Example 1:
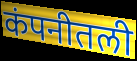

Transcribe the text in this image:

कंपनीतली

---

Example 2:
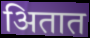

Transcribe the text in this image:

अितात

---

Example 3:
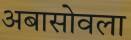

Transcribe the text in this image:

अबासोवला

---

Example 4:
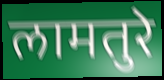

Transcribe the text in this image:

लामतुरे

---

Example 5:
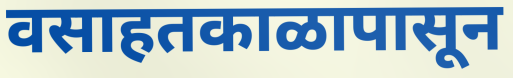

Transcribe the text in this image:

वसाहतकाळापासून